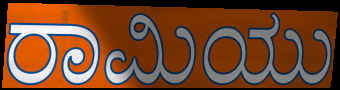
ರಾಮಿಯು